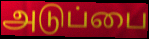
அடுப்பை